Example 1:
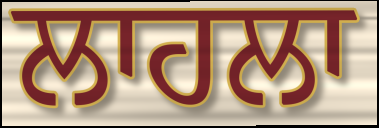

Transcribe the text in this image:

ਲਾਹਲਾ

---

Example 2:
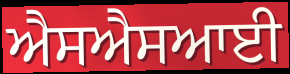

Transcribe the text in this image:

ਐਸਐਸਆਈ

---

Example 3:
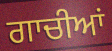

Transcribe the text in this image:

ਗਾਚੀਆਂ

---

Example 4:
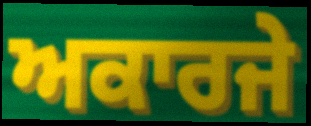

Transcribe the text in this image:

ਅਕਾਰਜੇ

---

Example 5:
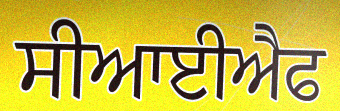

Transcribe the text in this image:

ਸੀਆਈਐਫ